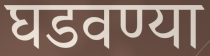
घडवण्या